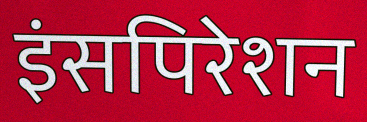
इंसपिरेशन